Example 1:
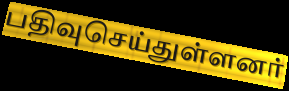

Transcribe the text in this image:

பதிவுசெய்துள்ளனர்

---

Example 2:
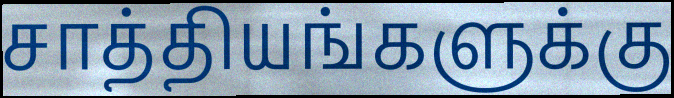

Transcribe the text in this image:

சாத்தியங்களுக்கு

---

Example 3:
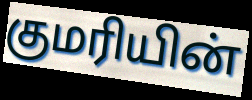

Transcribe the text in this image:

குமரியின்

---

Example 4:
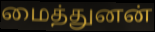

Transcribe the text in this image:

மைத்துனன்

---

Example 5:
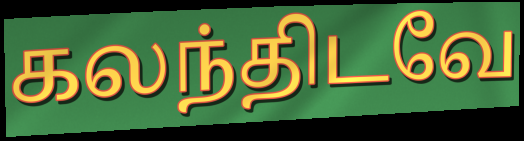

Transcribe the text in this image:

கலந்திடவே